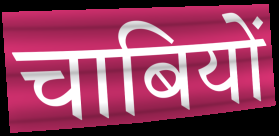
चाबियों